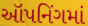
ઑપનિંગમાં